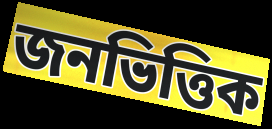
জনভিত্তিক